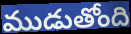
ముడుతోంది